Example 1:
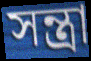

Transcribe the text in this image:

সন্ত্রা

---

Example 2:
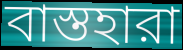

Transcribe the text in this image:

বাস্তহারা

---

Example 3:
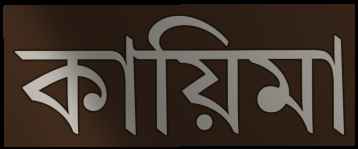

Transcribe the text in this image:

কায়িমা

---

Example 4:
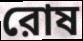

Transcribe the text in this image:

রোষ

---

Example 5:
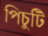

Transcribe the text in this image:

পিচুটি